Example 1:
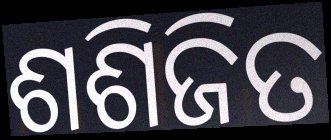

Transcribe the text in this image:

ଶଶିଜିତ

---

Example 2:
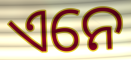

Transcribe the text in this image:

ଏନେ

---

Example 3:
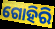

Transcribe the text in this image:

ଗୋହିରି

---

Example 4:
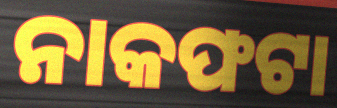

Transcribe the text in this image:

ନାକଫଟା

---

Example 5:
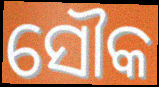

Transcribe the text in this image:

ସୌକ